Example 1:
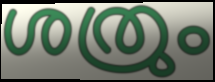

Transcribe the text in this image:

ശത്രും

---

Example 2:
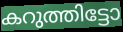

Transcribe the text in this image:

കറുത്തിട്ടോ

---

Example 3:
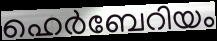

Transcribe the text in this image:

ഹെർബേറിയം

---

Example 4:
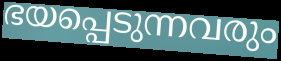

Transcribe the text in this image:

ഭയപ്പെടുന്നവരും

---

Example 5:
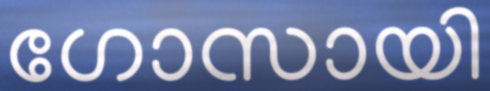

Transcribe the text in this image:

ഗോസായി